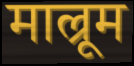
माल्रूम